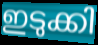
ഇടുക്കി